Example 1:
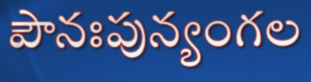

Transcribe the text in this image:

పౌనఃపున్యంగల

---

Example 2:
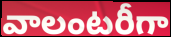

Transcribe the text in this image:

వాలంటరీగా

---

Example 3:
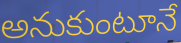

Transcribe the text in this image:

అనుకుంటూనే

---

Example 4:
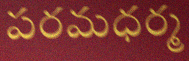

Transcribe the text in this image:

పరమధర్మ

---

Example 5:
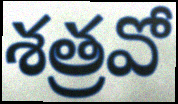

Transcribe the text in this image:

శత్రవో